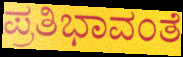
ಪ್ರತಿಭಾವಂತೆ